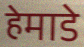
हेमाडे